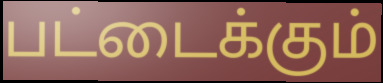
பட்டைக்கும்